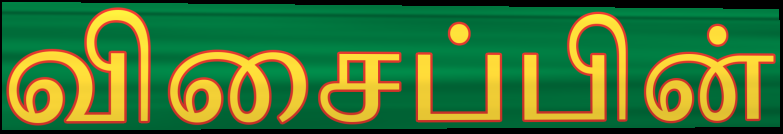
விசைப்பின்